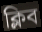
ক্লিব